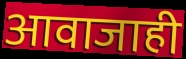
आवाजाही